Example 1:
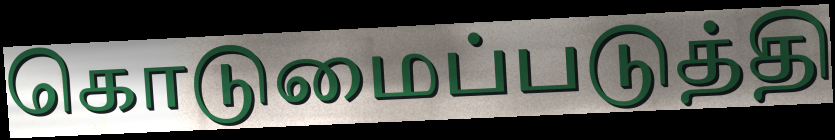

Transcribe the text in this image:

கொடுமைப்படுத்தி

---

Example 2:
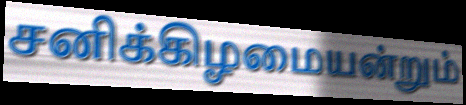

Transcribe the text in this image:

சனிக்கிழமையன்றும்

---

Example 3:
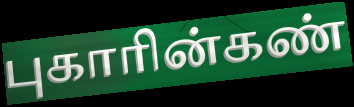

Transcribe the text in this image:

புகாரின்கண்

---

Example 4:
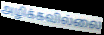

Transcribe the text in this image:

அழிக்கவில்லை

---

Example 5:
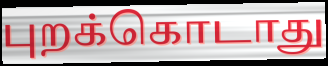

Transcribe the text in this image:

புறக்கொடாது